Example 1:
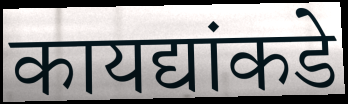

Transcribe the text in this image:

कायद्यांकडे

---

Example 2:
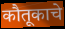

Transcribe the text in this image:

कौतूकाचे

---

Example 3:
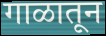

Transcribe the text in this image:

गाळातून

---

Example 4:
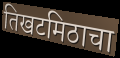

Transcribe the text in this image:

तिखटमिठाचा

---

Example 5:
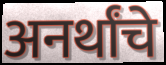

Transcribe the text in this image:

अनर्थांचे